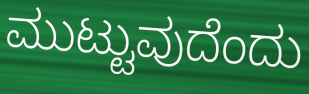
ಮುಟ್ಟುವುದೆಂದು